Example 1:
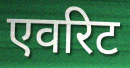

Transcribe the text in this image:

एवरिट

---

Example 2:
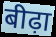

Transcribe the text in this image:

बीढ़ा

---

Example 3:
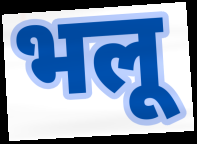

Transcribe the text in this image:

भलू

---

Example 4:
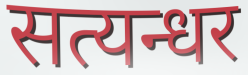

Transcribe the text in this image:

सत्यन्धर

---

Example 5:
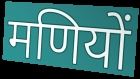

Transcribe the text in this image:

मणियों